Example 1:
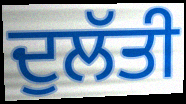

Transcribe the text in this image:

ਦੁਲੱਤੀ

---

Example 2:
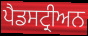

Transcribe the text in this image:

ਪੈਡਸਟ੍ਰੀਅਨ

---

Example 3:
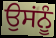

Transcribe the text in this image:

ਉਸਂਨੂੰ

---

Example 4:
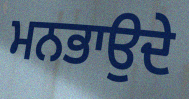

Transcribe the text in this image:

ਮਨਭਾਉਦੇ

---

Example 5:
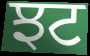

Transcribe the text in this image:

ਝਟ